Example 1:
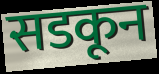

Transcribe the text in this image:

सडकून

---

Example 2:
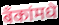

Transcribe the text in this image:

बँकांमधे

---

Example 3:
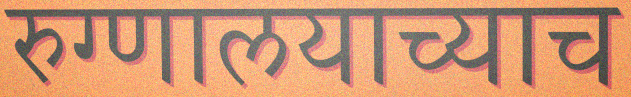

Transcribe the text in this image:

रुग्णालयाच्याच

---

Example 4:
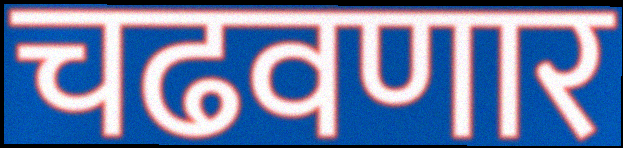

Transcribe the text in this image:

चढवणार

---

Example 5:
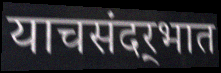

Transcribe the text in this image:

याचसंदर्भात